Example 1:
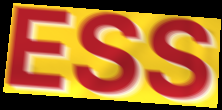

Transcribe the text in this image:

ESS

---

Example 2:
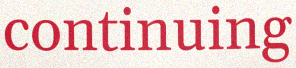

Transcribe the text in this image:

continuing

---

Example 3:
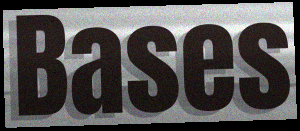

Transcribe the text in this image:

Bases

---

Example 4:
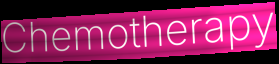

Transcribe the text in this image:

Chemotherapy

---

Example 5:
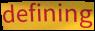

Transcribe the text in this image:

defining